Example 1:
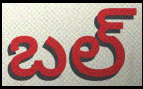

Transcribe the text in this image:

బల్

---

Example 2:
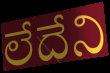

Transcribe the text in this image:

లేదేని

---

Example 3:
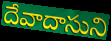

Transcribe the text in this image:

దేవాదాసుని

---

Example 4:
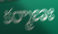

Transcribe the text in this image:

కర్మాణః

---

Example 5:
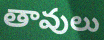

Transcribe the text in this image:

తావులు